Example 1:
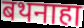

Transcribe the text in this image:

बथनाहा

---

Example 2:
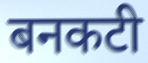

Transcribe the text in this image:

बनकटी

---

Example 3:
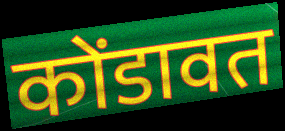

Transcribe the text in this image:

कोंडावत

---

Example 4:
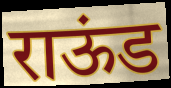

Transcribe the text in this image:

राऊंड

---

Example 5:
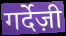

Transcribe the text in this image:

गर्देज़ी